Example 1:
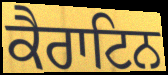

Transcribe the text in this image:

ਕੈਰਾਟਿਨ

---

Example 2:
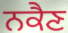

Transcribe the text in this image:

ਨਕੈਣ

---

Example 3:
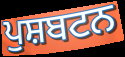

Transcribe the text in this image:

ਪੁਸ਼ਬਟਨ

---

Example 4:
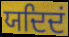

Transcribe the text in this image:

ਯਦਿਦਂ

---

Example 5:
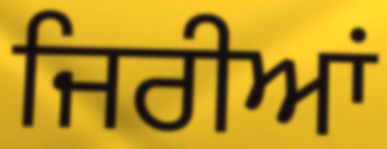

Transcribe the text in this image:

ਜਿਰੀਆਂ